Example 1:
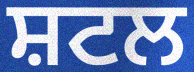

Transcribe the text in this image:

ਸ਼ਟਲ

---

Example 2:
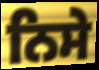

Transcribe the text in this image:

ਨਿਸੇ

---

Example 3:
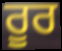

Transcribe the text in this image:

ਰੂਰ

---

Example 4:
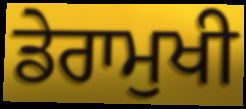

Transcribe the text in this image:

ਡੇਰਾਮੁਖੀ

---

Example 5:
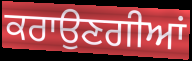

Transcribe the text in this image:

ਕਰਾਉਣਗੀਆਂ